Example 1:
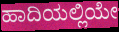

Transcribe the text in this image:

ಹಾದಿಯಲ್ಲಿಯೇ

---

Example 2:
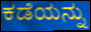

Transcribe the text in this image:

ಕಡೆಯನ್ನು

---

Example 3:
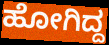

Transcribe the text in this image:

ಹೋಗಿದ್ದ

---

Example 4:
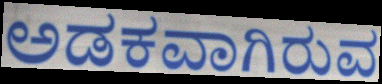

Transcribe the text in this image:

ಅಡಕವಾಗಿರುವ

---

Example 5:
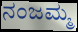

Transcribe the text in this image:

ನಂಜಮ್ಮ